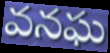
వనఘ